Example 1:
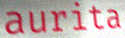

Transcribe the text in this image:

aurita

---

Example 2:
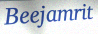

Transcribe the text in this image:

Beejamrit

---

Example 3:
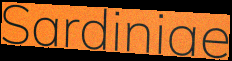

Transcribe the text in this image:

Sardiniae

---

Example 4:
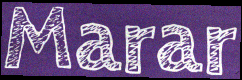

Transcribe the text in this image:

Marar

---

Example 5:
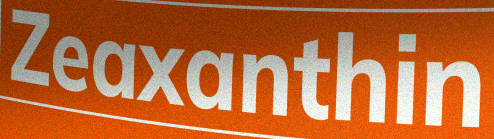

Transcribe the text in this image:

Zeaxanthin